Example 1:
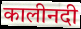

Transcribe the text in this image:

कालीनदी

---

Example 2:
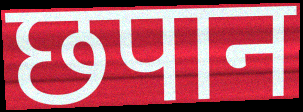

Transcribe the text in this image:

छपान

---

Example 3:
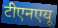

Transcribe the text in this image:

टीएनएयू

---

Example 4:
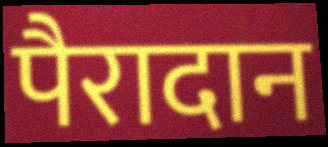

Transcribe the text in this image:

पैरादान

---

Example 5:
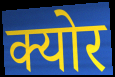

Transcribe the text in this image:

क्योर